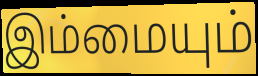
இம்மையும்